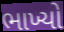
ભાખ્યો